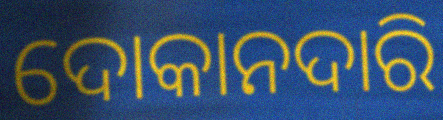
ଦୋକାନଦାରି